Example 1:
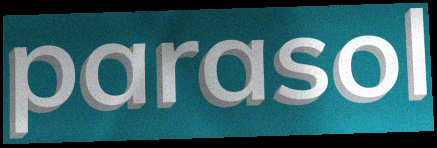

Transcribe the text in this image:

parasol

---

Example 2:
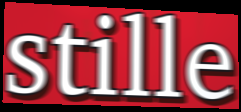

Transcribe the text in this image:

stille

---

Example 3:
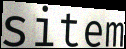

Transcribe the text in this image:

sitem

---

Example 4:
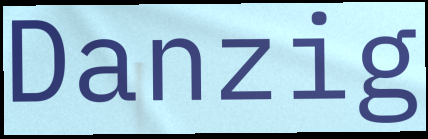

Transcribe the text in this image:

Danzig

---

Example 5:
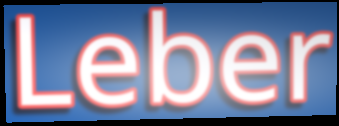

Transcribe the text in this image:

Leber